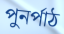
পুনর্পাঠ